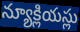
న్యూక్లియస్లు